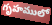
గృహములో